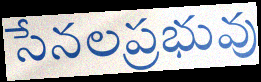
సేనలప్రభువు